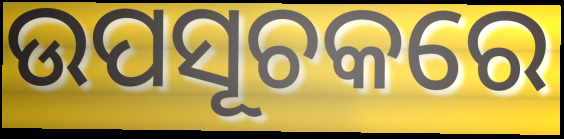
ଉପସୂଚକରେ